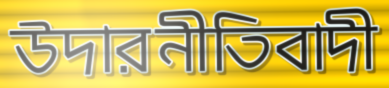
উদারনীতিবাদী